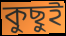
কুছুই